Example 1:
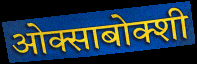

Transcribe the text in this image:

ओक्साबोक्शी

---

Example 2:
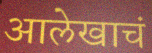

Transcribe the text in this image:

आलेखाचं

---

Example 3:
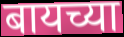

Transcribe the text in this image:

बायच्या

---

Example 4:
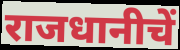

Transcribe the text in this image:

राजधानीचें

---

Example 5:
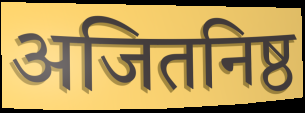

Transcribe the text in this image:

अजितनिष्ठ